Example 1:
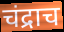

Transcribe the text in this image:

चंद्राच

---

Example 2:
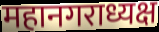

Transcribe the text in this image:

महानगराध्यक्ष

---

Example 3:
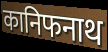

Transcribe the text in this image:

कानिफनाथ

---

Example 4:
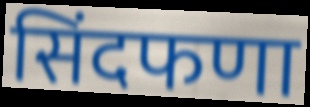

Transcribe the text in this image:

सिंदफणा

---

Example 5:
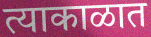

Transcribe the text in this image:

त्याकाळात